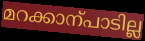
മറക്കാന്പാടില്ല